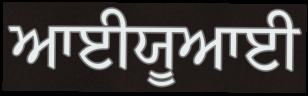
ਆਈਯੂਆਈ